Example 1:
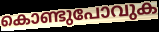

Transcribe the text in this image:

കൊണ്ടുപോവുക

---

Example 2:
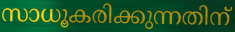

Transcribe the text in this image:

സാധൂകരിക്കുന്നതിന്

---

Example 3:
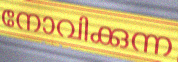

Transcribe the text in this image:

നോവിക്കുന്ന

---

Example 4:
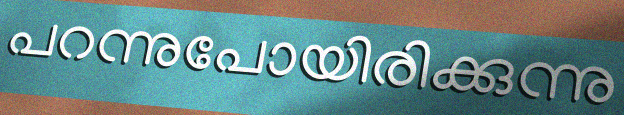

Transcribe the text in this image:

പറന്നുപോയിരിക്കുന്നു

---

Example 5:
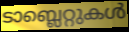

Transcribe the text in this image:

ടാബ്ലെറ്റുകൾ